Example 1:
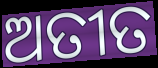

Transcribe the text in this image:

ଅତୀତ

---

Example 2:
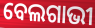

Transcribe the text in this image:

ବେଲଗାଭୀ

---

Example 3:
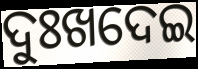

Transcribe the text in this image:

ଦୁଃଖଦେଇ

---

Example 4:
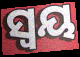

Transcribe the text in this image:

ସ୍ବୟ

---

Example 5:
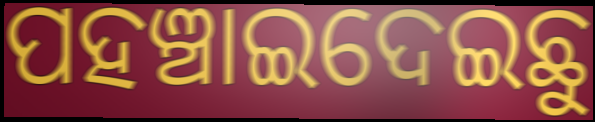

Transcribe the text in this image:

ପହଞ୍ଚାଇଦେଇଛୁ